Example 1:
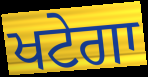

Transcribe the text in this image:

ਖਟੇਗਾ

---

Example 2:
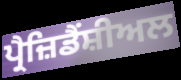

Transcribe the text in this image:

ਪ੍ਰੈਜ਼ਿਡੈਂਸ਼ੀਅਲ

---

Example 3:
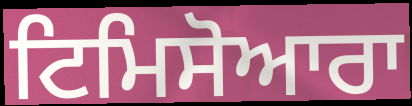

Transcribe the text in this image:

ਟਿਮਿਸੋਆਰਾ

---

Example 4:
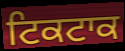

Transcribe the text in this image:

ਟਿਕਟਾਕ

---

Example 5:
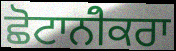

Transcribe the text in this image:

ਛੋਟਾਨੀੱਕਰਾ